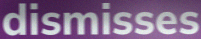
dismisses